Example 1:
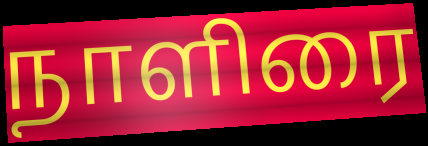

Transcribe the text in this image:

நாளிரை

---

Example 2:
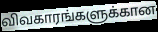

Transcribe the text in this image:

விவகாரங்களுக்கான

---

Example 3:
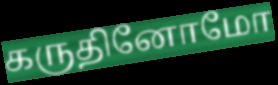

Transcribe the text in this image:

கருதினோமோ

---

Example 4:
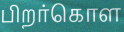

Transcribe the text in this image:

பிறர்கொள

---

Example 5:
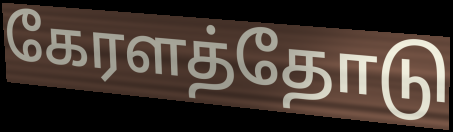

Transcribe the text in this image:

கேரளத்தோடு